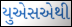
યુએસએથી